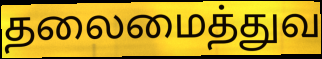
தலைமைத்துவ